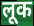
लूक